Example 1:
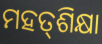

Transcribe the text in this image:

ମହତ୍‌ଶିକ୍ଷା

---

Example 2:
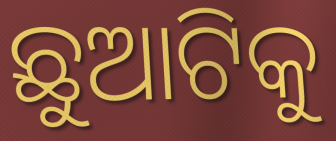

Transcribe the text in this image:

ଛୁଆଟିକୁ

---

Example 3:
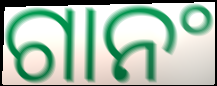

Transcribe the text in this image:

ଗାନଂ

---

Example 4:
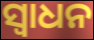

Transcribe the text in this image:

ସ୍ଵାଧନ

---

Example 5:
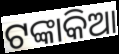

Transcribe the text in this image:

ଟଙ୍କାକିଆ